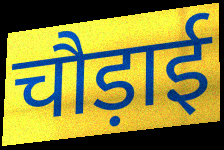
चौड़ाई